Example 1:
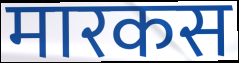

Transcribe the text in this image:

मारकस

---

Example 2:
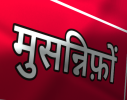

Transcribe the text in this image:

मुसन्निफ़ों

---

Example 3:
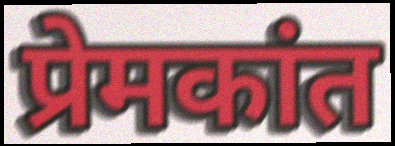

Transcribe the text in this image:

प्रेमकांत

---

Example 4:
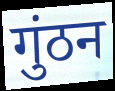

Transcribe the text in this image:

गुंठन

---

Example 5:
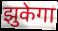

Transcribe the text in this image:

झुकेगा